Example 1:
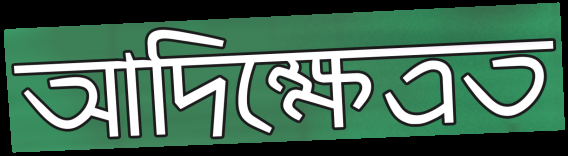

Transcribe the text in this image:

আদিক্ষেত্ৰত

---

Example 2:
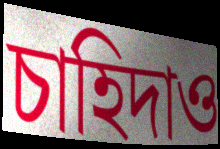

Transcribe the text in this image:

চাহিদাও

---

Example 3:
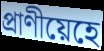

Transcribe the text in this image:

প্ৰাণীয়েহে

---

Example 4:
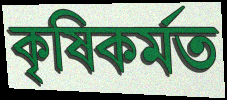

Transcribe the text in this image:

কৃষিকৰ্মত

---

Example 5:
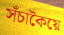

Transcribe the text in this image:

সঁচাকৈয়ে